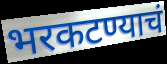
भरकटण्याचं